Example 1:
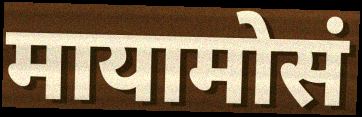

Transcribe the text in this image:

मायामोसं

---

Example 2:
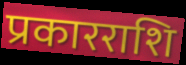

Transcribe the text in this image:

प्रकारराशि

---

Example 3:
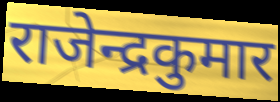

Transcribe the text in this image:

राजेन्द्रकुमार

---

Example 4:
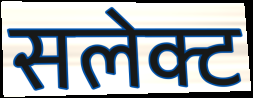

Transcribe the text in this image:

सलेक्ट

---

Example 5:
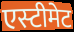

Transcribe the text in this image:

एस्‍टीमेट